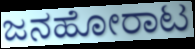
ಜನಹೋರಾಟ